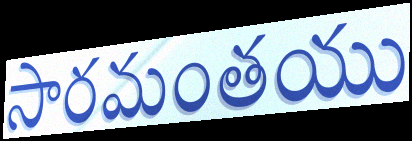
సారమంతయు